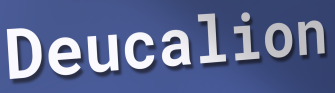
Deucalion